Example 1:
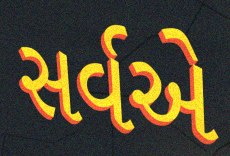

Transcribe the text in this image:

સર્વએ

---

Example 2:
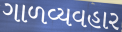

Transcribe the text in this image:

ગાળવ્યવહાર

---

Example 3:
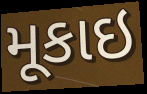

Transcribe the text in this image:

મૂકાઇ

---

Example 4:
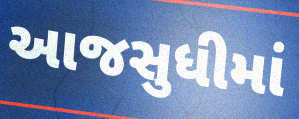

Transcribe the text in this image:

આજસુધીમાં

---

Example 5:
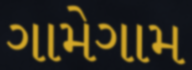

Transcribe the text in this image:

ગામેગામ